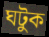
ঘটুক